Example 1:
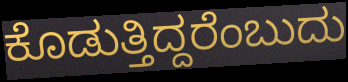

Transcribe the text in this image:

ಕೊಡುತ್ತಿದ್ದರೆಂಬುದು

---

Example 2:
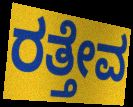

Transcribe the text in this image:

ರತ್ತೇವ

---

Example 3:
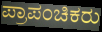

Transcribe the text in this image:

ಪ್ರಾಪಂಚಿಕರು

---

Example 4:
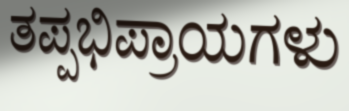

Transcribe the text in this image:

ತಪ್ಪಭಿಪ್ರಾಯಗಳು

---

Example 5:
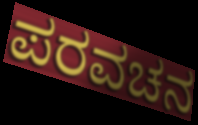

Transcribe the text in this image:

ಪರವಚನ